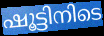
ഷൂട്ടിനിടെ